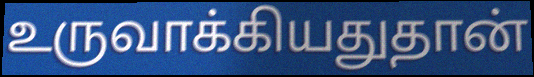
உருவாக்கியதுதான்